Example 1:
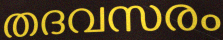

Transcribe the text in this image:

തദവസരം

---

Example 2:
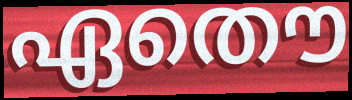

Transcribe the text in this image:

ഏതൌ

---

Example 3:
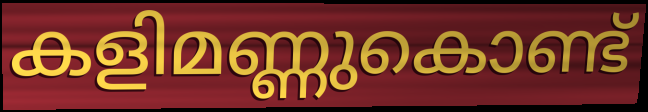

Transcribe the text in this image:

കളിമണ്ണുകൊണ്ട്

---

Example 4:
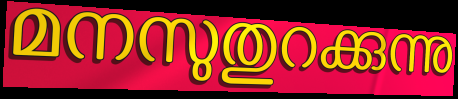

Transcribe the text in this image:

മനസുതുറക്കുന്നു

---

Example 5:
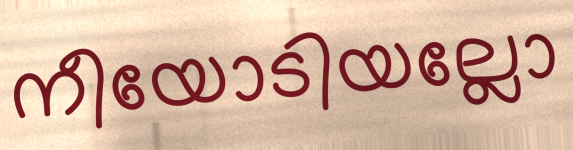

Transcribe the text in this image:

നീയോടിയല്ലോ